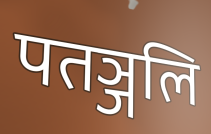
पतञ्जलि